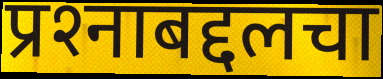
प्रश्नाबद्दलचा